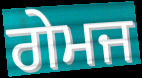
ਗੇਮਜ